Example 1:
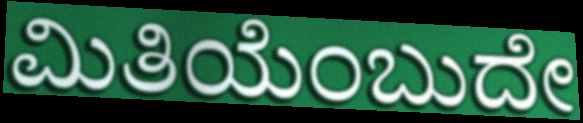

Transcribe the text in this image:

ಮಿತಿಯೆಂಬುದೇ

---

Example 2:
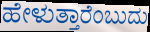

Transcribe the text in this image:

ಹೇಳುತ್ತಾರೆಂಬುದು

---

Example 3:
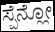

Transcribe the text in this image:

ಸ್ಪೆನ್ಲೋ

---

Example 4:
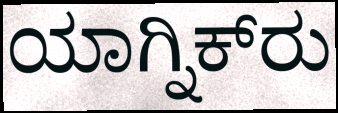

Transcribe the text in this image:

ಯಾಗ್ನಿಕ್‍ರು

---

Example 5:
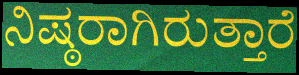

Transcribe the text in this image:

ನಿಷ್ಠರಾಗಿರುತ್ತಾರೆ